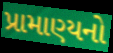
પ્રામાણ્યનો